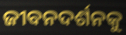
ଜୀବନଦର୍ଶନକୁ